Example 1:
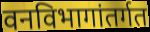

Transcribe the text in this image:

वनविभागांतर्गत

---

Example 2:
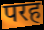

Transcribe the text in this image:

परह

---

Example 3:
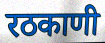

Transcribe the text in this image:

रठकाणी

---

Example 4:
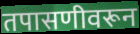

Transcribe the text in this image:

तपासणीवरून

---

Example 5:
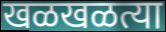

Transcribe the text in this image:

खळखळत्या